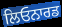
ਲਿਓਨਾਰਡ